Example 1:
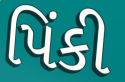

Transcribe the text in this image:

પિંકી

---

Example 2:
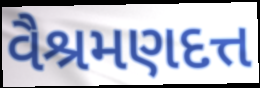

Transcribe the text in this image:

વૈશ્રમણદત્ત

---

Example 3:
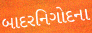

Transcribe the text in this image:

બાદરનિગોદના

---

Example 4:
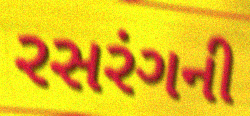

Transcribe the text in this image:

રસરંગની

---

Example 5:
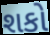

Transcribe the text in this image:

શકો